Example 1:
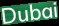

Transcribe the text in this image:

Dubai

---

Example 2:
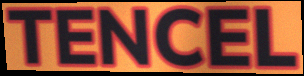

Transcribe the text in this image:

TENCEL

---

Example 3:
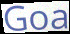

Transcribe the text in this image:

Goa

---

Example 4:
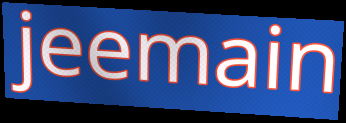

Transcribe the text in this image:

jeemain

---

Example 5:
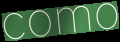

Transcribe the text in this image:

como